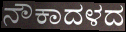
ನೌಕಾದಳದ